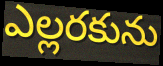
ఎల్లరకును